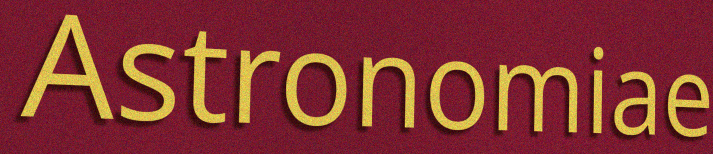
Astronomiae